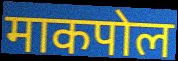
माकपोल